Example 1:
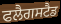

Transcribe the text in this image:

ਫਲੈਗਸਟੈਡ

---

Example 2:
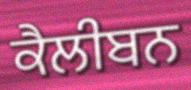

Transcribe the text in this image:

ਕੈਲੀਬਨ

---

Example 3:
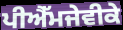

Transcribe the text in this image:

ਪੀਐੱਮਜੇਵੀਕੇ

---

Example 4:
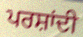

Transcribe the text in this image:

ਪਰਸ਼ਾਂਦੀ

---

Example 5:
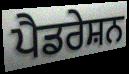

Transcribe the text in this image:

ਪੈਡਰੇਸ਼ਨ